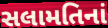
સલામતિનાં